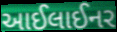
આઈલાઈનર